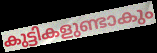
കുട്ടികളുണ്ടാകും